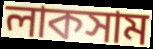
লাকসাম